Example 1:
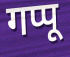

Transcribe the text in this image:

गप्पू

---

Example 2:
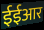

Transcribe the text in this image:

ईईआर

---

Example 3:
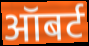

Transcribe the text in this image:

ऑबर्ट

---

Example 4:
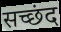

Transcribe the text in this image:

सच्छंद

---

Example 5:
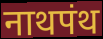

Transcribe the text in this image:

नाथपंथ